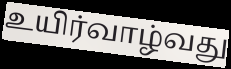
உயிர்வாழ்வது